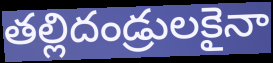
తల్లిదండ్రులకైనా